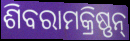
ଶିବରାମକ୍ରିଷ୍ଣନ୍